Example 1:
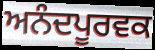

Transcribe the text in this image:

ਅਨੰਦਪੂਰਵਕ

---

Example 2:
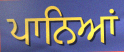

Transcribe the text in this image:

ਪਾਨਿਆਂ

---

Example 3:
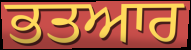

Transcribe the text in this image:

ਭਤਆਰ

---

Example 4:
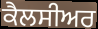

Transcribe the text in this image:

ਕੈਲਸੀਅਰ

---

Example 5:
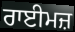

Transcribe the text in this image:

ਰਾਈਮਜ਼